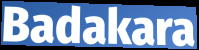
Badakara